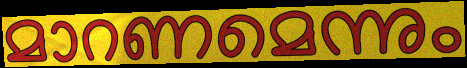
മാറണമെന്നും